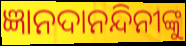
ଜ୍ଞାନଦାନନ୍ଦିନୀଙ୍କୁ